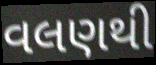
વલણથી